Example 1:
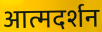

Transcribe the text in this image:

आत्मदर्शन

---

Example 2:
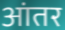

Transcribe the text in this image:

आंतर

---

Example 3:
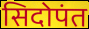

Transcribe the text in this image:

सिदोपंत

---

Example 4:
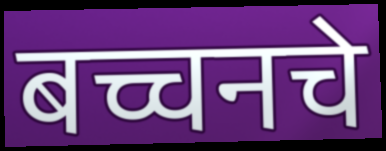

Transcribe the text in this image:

बच्चनचे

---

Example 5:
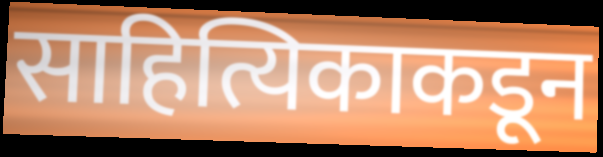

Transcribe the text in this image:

साहित्यिकाकडून